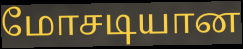
மோசடியான